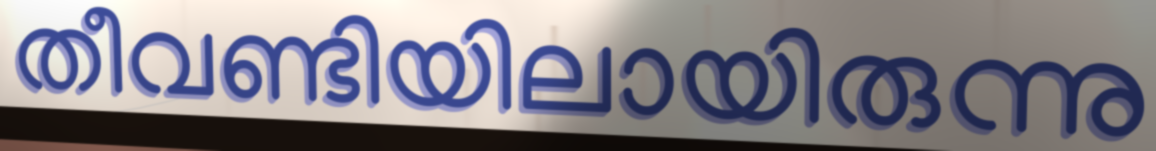
തീവണ്ടിയിലായിരുന്നു